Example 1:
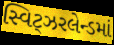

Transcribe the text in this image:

સ્વિટ્ઝરલેન્ડમાં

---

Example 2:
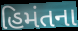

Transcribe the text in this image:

હિમંતના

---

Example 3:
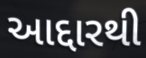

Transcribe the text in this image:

આદ્દારથી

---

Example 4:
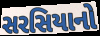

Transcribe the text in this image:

સરસિયાનો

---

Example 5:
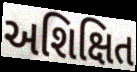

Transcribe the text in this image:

અશિક્ષિત